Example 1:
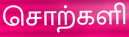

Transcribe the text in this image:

சொற்களி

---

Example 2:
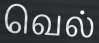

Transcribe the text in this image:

வெல்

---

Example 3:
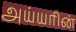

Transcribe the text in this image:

அய்யரின்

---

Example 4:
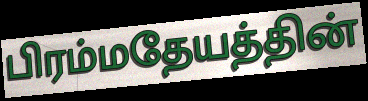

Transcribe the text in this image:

பிரம்மதேயத்தின்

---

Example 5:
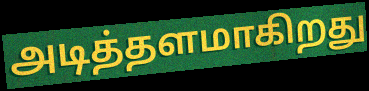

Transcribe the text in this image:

அடித்தளமாகிறது